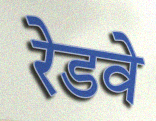
रेडवे